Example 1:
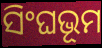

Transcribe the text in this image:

ସିଂଘଭୂମ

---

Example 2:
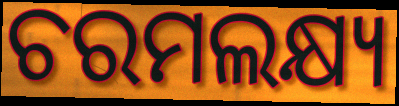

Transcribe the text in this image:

ଚରମଲକ୍ଷ୍ୟ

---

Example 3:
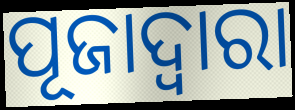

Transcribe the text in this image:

ପୂଜାଦ୍ଵାରା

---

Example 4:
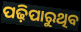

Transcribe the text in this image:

ପଢ଼ିପାରୁଥିବ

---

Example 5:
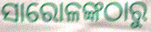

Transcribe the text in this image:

ସାରୋଳଙ୍କଠାରୁ